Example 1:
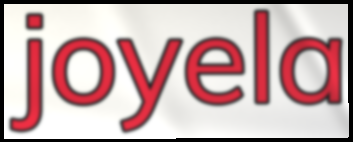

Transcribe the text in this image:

joyela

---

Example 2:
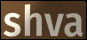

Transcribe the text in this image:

shva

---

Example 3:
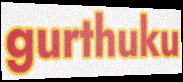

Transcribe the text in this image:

gurthuku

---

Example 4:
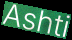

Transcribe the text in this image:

Ashti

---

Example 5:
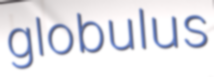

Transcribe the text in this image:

globulus